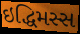
ઇદ્ધિમસ્સ